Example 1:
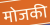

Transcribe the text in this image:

मोजकी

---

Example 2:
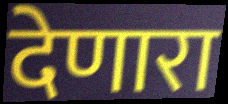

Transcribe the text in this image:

देणारा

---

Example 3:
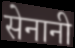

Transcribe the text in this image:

सेनानी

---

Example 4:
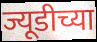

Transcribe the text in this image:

ज्यूडीच्या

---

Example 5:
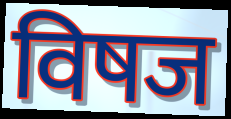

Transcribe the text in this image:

विषज